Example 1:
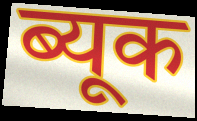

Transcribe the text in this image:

ब्यूक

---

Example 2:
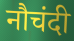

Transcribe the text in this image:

नौचंदी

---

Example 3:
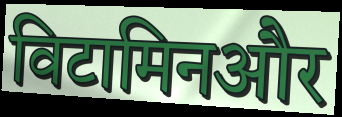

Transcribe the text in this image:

विटामिनऔर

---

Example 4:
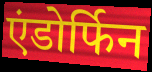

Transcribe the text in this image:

एंडोर्फिन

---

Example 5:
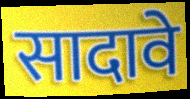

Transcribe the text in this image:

सादावे